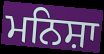
ਮਨਿਸ਼ਾ